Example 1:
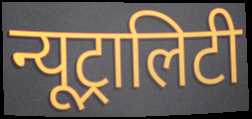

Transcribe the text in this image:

न्यूट्रालिटी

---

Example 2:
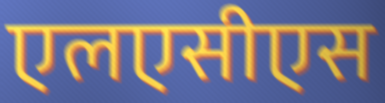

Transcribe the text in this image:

एलएसीएस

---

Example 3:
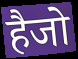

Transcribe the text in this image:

हैजो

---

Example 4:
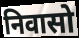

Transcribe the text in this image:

निवासो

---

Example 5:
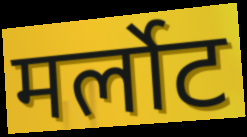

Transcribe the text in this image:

मर्लोट